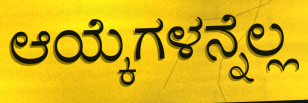
ಆಯ್ಕೆಗಳನ್ನೆಲ್ಲ